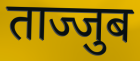
ताज्जुब